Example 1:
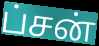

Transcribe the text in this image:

ப்சன்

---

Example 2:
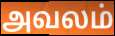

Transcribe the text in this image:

அவலம்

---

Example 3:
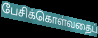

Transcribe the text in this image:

பேசிக்கொள்வதைப்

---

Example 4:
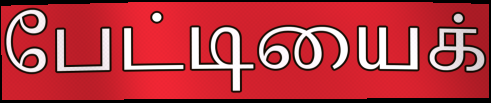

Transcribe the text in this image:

பேட்டியைக்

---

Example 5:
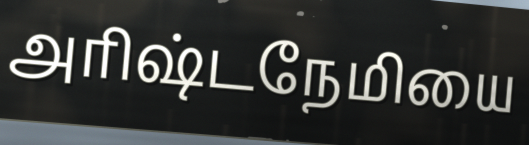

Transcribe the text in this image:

அரிஷ்டநேமியை